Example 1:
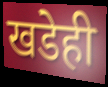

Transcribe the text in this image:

खडेही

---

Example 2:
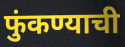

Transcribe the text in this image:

फुंकण्याची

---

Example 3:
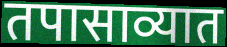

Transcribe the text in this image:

तपासाव्यात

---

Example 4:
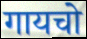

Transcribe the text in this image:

गायचो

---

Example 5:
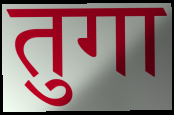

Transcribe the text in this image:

तुगा